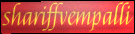
shariffvempalli